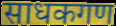
साधकगण